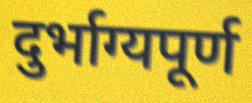
दुर्भाग्यपूर्ण